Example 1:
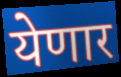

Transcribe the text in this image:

येणार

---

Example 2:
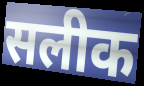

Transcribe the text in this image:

सलीक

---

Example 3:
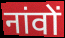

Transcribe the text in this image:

नांवों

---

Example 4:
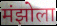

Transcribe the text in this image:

मंझोला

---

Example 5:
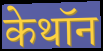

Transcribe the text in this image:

केथॉन